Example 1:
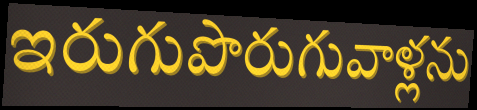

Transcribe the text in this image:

ఇరుగుపొరుగువాళ్లను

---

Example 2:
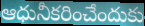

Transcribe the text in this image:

ఆధునీకరించేందుకు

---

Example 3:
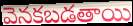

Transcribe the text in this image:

వెనకబడతాయి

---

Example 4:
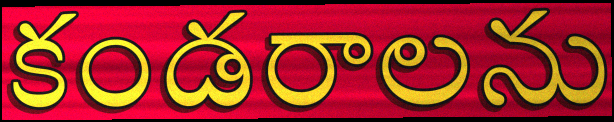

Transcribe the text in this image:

కండరాలను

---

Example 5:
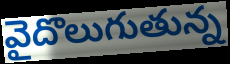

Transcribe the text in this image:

వైదొలుగుతున్న